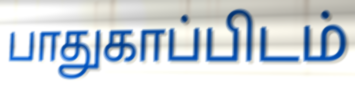
பாதுகாப்பிடம்